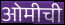
ओमीची